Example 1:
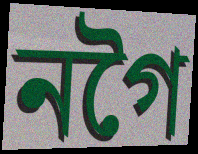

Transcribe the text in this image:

নগৈ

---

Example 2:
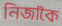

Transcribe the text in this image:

নিজাকৈ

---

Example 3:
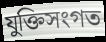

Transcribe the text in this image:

যুক্তিসংগত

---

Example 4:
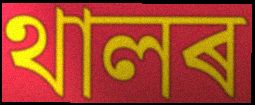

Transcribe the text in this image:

থালৰ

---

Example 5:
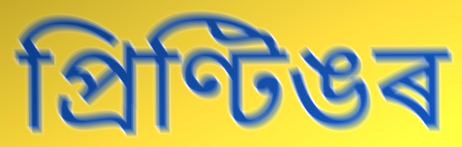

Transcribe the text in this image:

প্ৰিণ্টিঙৰ